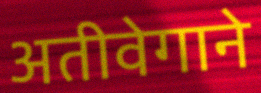
अतीवेगाने